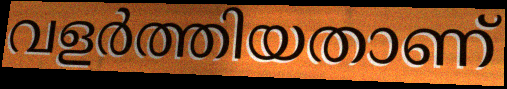
വളർത്തിയതാണ്